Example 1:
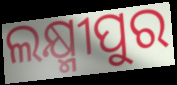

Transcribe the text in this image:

ଲକ୍ଷ୍ମୀପୁର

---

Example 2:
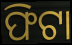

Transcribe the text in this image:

ଫିଟା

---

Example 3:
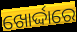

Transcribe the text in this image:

ଖୋର୍ଦ୍ଦାରେ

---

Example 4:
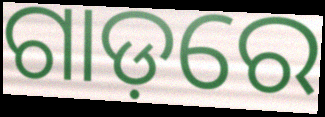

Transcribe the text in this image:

ଗାଡ଼ରେ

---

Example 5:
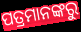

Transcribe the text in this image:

ପତ୍ରମାନଙ୍କରୁ